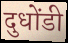
दुधोंडी